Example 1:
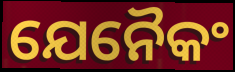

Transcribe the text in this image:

ଯେନୈକଂ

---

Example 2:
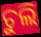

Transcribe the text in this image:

ଚୁଲି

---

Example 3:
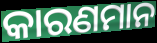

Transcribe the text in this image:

କାରଣମାନ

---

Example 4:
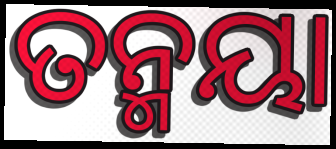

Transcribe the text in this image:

ତନ୍ମୟା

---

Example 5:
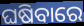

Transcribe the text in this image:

ଘଷିବାରେ